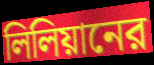
লিলিয়ানের